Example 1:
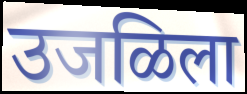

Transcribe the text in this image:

उजळिला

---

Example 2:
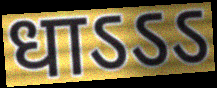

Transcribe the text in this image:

धाऽऽऽ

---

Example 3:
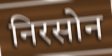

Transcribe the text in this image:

निरसोन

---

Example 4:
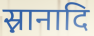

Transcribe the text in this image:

स्नानादि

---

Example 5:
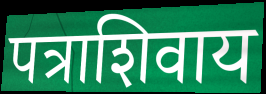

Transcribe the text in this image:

पत्राशिवाय